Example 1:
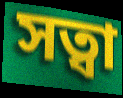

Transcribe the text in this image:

সত্বা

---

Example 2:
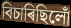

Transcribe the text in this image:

বিচাৰিছিলোঁ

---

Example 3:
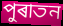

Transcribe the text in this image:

পুৰাতন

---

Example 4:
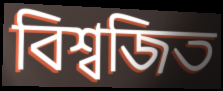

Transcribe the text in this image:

বিশ্বজিত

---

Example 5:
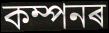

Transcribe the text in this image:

কম্পনৰ